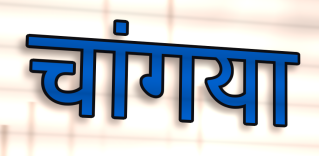
चांगया